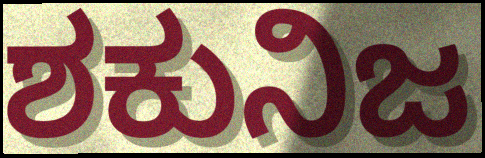
ಶಕುನಿಜ